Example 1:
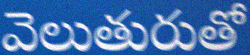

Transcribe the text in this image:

వెలుతురుతో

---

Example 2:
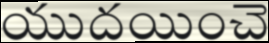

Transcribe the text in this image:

యుదయించె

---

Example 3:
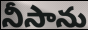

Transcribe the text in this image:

నీసాను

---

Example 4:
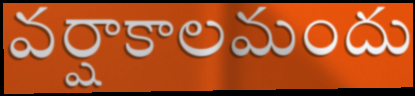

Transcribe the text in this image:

వర్షాకాలమందు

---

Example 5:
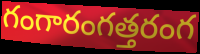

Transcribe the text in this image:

గంగారంగత్తరంగ